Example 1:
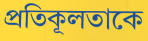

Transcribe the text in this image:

প্রতিকূলতাকে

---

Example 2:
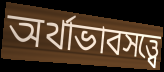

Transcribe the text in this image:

অর্থাভাবসত্ত্বে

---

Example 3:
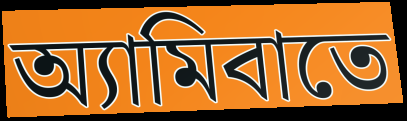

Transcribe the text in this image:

অ্যামিবাতে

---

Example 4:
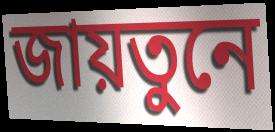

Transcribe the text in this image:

জায়তুনে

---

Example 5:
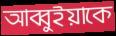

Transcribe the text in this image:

আব্বুইয়াকে